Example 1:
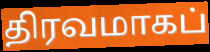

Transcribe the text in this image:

திரவமாகப்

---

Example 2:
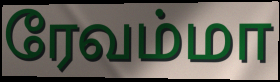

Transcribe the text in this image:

ரேவம்மா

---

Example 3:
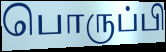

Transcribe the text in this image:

பொருப்பி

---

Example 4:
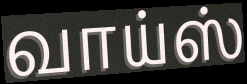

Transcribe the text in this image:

வாய்ஸ்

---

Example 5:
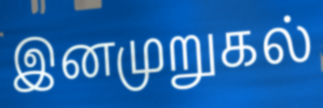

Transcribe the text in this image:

இனமுறுகல்